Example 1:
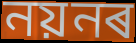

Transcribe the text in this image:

নয়নৰ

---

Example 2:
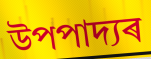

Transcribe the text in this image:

উপপাদ্যৰ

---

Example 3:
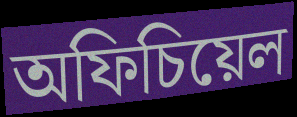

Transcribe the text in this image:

অফিচিয়েল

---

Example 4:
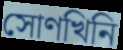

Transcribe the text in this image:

সোণখিনি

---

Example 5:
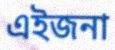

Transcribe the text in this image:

এইজনা